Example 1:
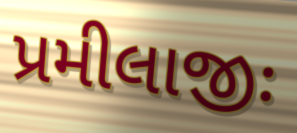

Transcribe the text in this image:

પ્રમીલાજીઃ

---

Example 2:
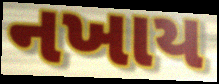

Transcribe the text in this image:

નખાય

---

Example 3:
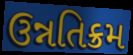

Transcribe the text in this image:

ઉન્નતિક્રમ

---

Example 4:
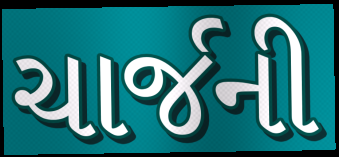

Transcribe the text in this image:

ચાર્જની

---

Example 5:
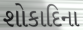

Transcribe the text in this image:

શોકાદિના